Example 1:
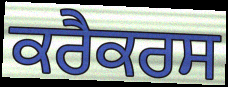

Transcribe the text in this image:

ਕਰੈਕਰਸ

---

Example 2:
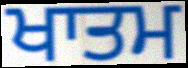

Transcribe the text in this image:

ਖਾਤਮ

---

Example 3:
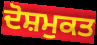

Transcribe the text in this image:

ਦੋਸ਼ਮੁਕਤ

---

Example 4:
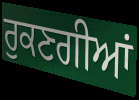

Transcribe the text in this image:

ਰੁਕਣਗੀਆਂ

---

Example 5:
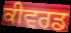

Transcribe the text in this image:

ਕੀਵਰਡ